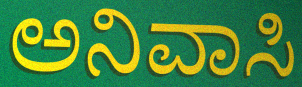
ಅನಿವಾಸಿ